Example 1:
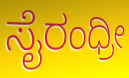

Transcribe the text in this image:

ಸೈರಂಧ್ರೀ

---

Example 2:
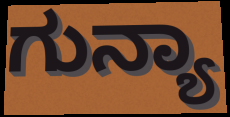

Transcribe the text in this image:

ಗುನ್ಯಾ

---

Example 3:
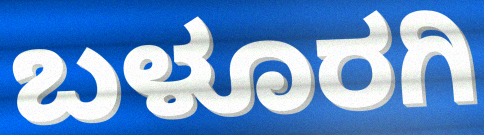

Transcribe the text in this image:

ಬಳೂರಗಿ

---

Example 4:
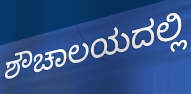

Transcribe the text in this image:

ಶೌಚಾಲಯದಲ್ಲಿ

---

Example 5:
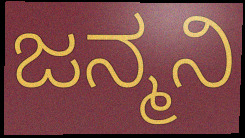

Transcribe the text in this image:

ಜನ್ಮನಿ